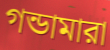
গন্ডামারা